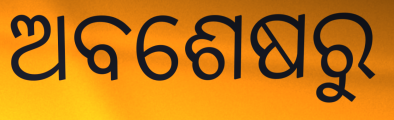
ଅବଶେଷରୁ